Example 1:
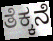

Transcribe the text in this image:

ತೆಕ್ಕನೆ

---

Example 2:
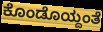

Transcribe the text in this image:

ಕೊಂಡೊಯ್ದಂತೆ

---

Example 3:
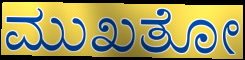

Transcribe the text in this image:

ಮುಖತೋ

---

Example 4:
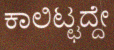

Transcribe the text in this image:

ಕಾಲಿಟ್ಟದ್ದೇ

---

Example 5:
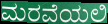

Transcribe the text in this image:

ಮರವೆಯಲಿ